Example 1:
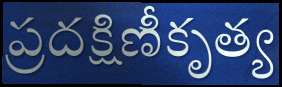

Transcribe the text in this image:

ప్రదక్షిణీకృత్య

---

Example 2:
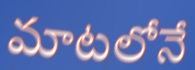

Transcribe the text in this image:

మాటలోనే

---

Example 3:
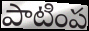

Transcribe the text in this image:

పాటింప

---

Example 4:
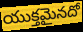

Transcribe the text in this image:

యుక్తమైనదో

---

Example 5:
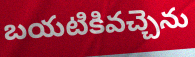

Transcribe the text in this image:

బయటికివచ్చెను